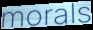
morals